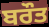
ਬਰੌਤ